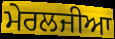
ਮੇਰਲਜੀਆ